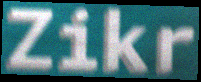
Zikr